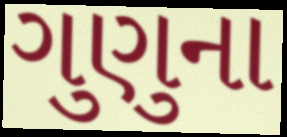
ગુણુના